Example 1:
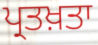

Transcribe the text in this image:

ਪ੍ਰਤਖ਼ਤਾ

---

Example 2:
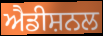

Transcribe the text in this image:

ਐਡੀਸ਼ਨਲ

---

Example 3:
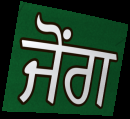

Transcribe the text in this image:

ਜੋਂਗ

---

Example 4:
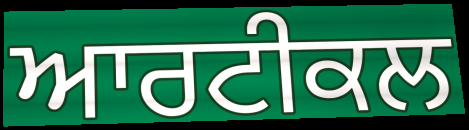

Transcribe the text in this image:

ਆਰਟੀਕਲ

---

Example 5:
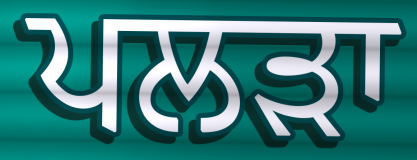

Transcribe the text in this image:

ਪਲੜਾ